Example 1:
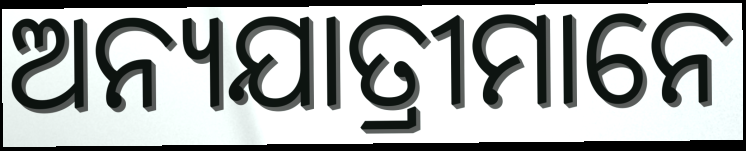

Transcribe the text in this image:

ଅନ୍ୟଯାତ୍ରୀମାନେ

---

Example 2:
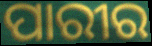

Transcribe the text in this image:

ପାରୀର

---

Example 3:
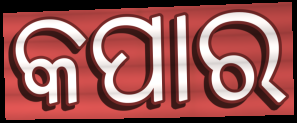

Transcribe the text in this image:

କପାର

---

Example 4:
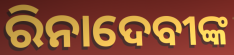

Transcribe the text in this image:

ରିନାଦେବୀଙ୍କ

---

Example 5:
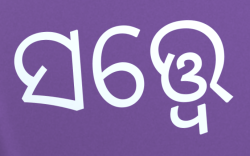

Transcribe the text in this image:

ସତ୍ତ୍ବେ